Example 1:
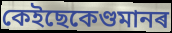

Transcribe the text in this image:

কেইছেকেণ্ডমানৰ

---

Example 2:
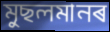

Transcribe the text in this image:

মুছলমানৰ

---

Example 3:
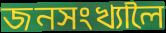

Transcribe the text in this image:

জনসংখ্যালৈ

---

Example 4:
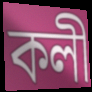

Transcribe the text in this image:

কলী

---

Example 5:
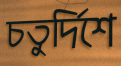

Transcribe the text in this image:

চতুৰ্দিশে